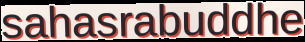
sahasrabuddhe